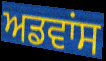
ਅਡਵਾਂਸ